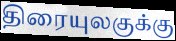
திரையுலகுக்கு